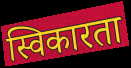
स्विकारता